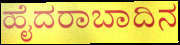
ಹೈದರಾಬಾದಿನ